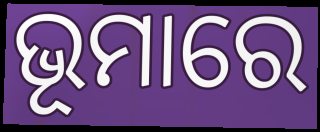
ଭୂମାରେ